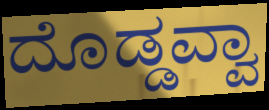
ದೊಡ್ಡವ್ವಾ